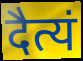
दैत्यं